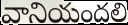
వానియందలి